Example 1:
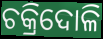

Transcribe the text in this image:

ଚକ୍ରିଦୋଳି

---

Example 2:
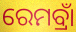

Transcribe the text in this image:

ରେମବ୍ରାଁ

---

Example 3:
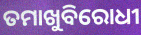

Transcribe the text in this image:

ତମାଖୁବିରୋଧୀ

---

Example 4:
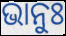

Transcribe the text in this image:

ଭାନୁଃ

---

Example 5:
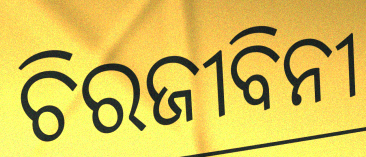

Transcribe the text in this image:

ଚିରଜୀବିନୀ